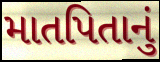
માતપિતાનું